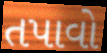
તપાવો